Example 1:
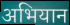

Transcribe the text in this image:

अभियान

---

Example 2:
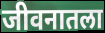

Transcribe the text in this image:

जीवनातला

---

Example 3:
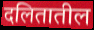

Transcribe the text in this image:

दलितातील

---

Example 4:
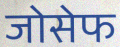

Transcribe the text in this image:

जोसेफ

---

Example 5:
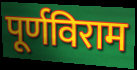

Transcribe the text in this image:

पूर्णविराम